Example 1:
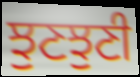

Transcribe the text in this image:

ਝੁਣਝੁਣੀ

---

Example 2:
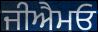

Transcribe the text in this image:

ਜੀਐਮਓ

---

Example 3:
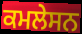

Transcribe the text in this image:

ਕਮਲੇਸਨ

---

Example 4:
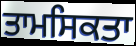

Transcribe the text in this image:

ਤਾਮਸਿਕਤਾ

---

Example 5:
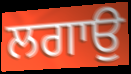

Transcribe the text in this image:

ਲਗਾਉੁ